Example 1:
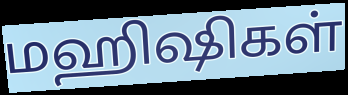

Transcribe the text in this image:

மஹிஷிகள்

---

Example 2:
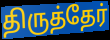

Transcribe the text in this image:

திருத்தேர்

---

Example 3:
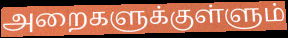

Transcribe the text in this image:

அறைகளுக்குள்ளும்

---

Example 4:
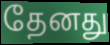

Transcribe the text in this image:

தேனது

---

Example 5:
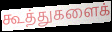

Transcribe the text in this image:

கூத்துகளைக்